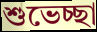
শুভেচ্ছা